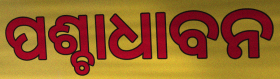
ପଶ୍ଚାଧାବନ